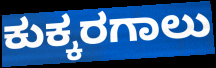
ಕುಕ್ಕರಗಾಲು